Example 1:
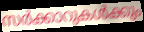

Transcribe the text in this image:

സർക്കാറുകൾക്കും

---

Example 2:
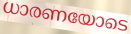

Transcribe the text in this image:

ധാരണയോടെ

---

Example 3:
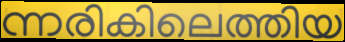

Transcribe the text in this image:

ന്നരികിലെത്തിയ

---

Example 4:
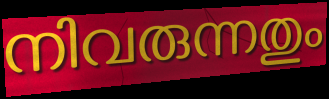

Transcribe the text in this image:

നിവരുന്നതും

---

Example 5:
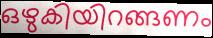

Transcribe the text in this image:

ഒഴുകിയിറങ്ങണം